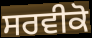
ਸਰਵੀਕੋ